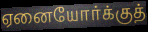
ஏனையோர்க்குத்